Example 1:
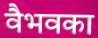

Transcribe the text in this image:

वैभवका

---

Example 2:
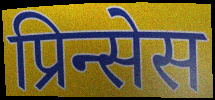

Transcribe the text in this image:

प्रिन्सेस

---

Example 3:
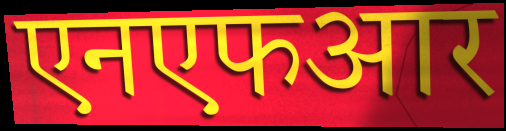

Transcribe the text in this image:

एनएफआर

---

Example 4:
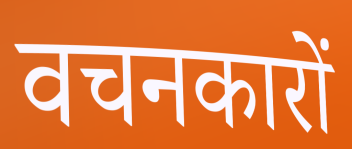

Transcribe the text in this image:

वचनकारों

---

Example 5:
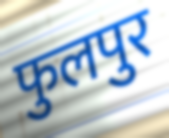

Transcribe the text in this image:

फुलपुर